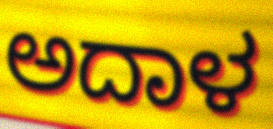
ಅದಾಳ